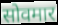
सोवमार